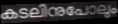
കടലിനുപോലും